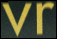
vr